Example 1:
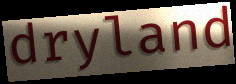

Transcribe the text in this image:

dryland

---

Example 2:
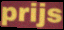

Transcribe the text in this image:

prijs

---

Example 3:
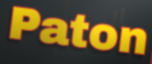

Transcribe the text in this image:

Paton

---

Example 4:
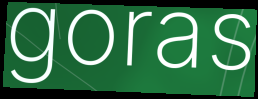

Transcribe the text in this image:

goras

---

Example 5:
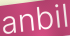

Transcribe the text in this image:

anbil